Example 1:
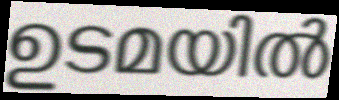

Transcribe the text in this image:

ഉടമയിൽ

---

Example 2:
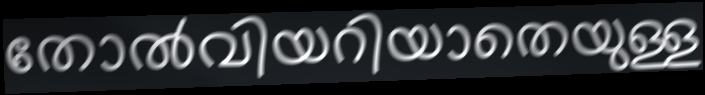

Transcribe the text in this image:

തോൽവിയറിയാതെയുള്ള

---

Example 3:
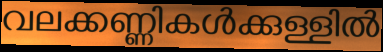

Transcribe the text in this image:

വലക്കണ്ണികൾക്കുള്ളിൽ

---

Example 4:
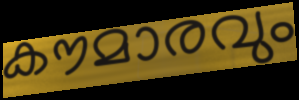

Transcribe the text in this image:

കൗമാരവും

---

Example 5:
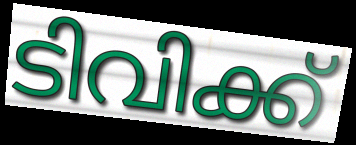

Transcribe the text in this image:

ടിവിക്ക്